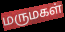
மருமகள்